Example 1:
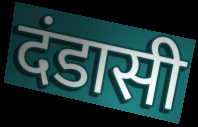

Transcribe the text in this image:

दंडासी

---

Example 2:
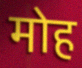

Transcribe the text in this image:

मोह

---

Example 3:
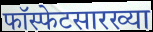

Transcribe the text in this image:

फॉस्फेटसारख्या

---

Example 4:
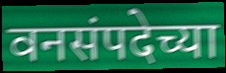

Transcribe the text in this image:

वनसंपदेच्या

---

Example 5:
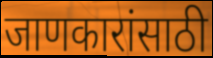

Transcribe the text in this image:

जाणकारांसाठी